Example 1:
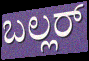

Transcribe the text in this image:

ಬಲ್ಲರ್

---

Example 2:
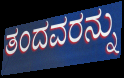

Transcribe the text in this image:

ತಂದವರನ್ನು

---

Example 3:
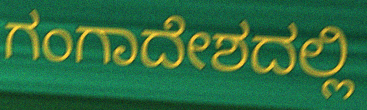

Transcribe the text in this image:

ಗಂಗಾದೇಶದಲ್ಲಿ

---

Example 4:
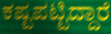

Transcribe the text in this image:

ಕಷ್ಟಪಟ್ಟಿದ್ದಾರೆ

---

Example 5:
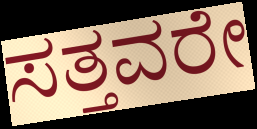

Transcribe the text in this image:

ಸತ್ತವರೇ